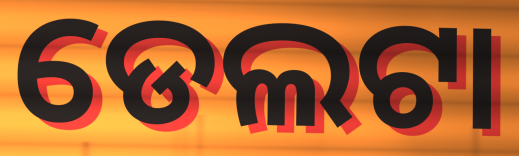
ଡେଲଟା